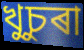
খুচুৰা